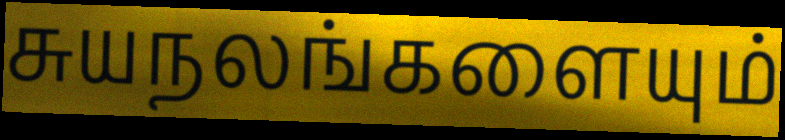
சுயநலங்களையும்